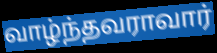
வாழ்ந்தவராவார்